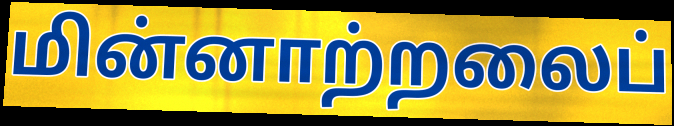
மின்னாற்றலைப்